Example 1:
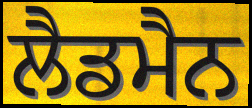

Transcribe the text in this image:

ਲੈਡਮੈਨ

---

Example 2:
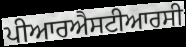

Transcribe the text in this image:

ਪੀਆਰਐਸਟੀਆਰਸੀ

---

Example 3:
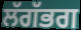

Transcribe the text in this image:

ਲੱਗੱਭਗ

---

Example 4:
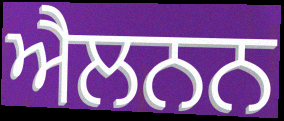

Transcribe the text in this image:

ਐਲਨਨ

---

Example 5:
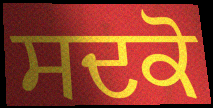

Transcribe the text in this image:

ਸਦਕੋ